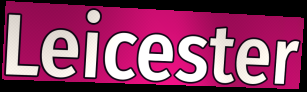
Leicester